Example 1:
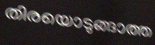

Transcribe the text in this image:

തിരയൊടുങ്ങാത്ത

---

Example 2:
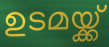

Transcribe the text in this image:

ഉടമയ്ക്ക്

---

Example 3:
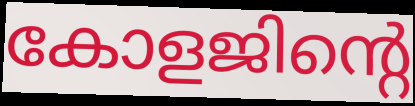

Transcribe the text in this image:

കോളജിന്റെ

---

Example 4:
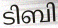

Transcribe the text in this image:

ടിബി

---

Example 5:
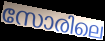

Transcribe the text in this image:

സോരിലെ